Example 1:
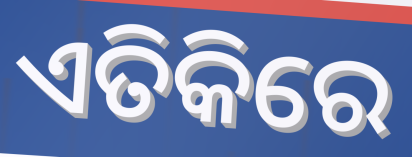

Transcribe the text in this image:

ଏତିକିରେ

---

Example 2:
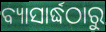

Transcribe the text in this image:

ବ୍ୟାସାର୍ଦ୍ଧଠାରୁ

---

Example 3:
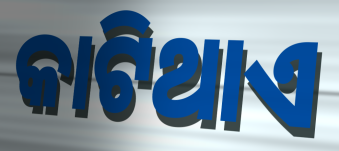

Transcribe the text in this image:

କାଟିଥାଏ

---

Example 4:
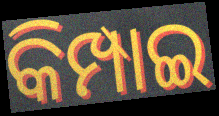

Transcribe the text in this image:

କିମ୍ପାଇ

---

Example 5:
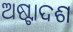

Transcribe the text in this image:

ଅଷ୍ଟାଦଶ